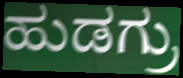
ಹುಡಗ್ರು